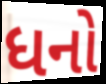
ધનો